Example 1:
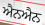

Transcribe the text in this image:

ਐਨਐਨ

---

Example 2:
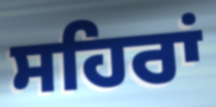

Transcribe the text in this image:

ਸਹਿਰਾਂ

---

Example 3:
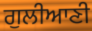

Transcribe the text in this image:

ਗੁਲੀਆਣੀ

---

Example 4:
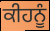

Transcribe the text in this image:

ਕੀਹਨੂੰ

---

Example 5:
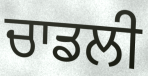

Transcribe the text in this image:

ਚਾਡਲੀ